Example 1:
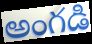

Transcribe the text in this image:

అంగడి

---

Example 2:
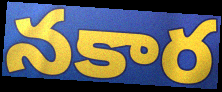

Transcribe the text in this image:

నకార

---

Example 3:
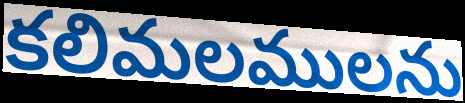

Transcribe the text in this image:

కలిమలములను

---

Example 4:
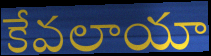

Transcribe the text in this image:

కేవలాయా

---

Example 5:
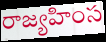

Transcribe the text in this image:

రాజ్యహింస